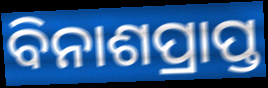
ବିନାଶପ୍ରାପ୍ତ